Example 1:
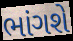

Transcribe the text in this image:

ભાંગશે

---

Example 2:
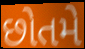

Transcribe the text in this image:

છોતમે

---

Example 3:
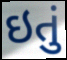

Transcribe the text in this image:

ઇતું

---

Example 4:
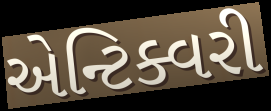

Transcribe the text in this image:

એન્ટિક્વરી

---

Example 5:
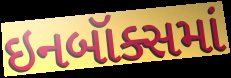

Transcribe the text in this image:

ઇનબૉક્સમાં